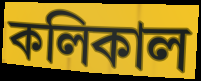
কলিকাল